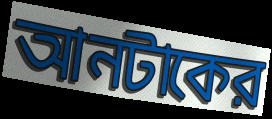
আনটাকের